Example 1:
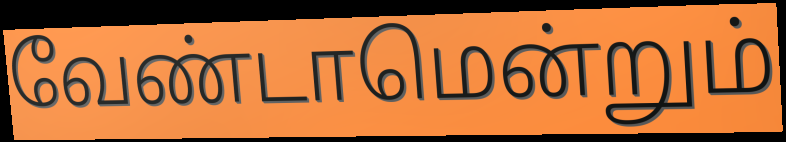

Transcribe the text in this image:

வேண்டாமென்றும்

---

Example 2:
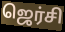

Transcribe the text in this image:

ஜெர்சி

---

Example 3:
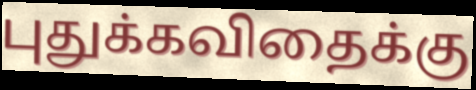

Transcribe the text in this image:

புதுக்கவிதைக்கு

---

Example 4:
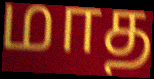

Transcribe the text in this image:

மாத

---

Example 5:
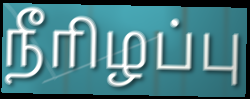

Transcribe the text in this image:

நீரிழப்பு